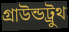
গ্রাউন্ডট্রুথ